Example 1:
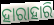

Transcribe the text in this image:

ହାରାହାରି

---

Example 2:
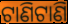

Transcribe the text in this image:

ଟାଣିଟାଣି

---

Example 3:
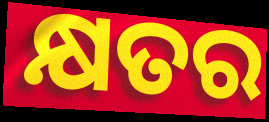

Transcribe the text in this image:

କ୍ଷତର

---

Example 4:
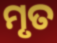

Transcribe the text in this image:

ମୃତ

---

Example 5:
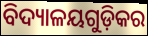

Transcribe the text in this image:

ବିଦ୍ୟାଳୟଗୁଡ଼ିକର